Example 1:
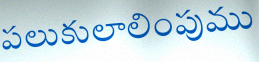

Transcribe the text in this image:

పలుకులాలింపుము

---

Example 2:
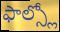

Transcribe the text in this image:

ఫాల్స్లో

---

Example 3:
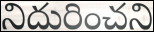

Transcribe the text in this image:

నిదురించని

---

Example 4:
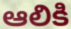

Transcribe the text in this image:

ఆలికి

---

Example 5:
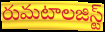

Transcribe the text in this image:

రుమటాలజిస్ట్